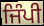
ਜਿੰਪੀ